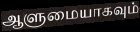
ஆளுமையாகவும்